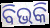
ବିଭକି